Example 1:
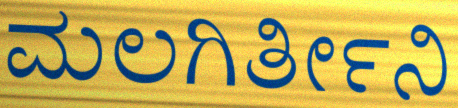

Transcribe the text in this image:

ಮಲಗಿರ್ತೀನಿ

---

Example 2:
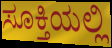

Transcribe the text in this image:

ಸೂಕ್ತಿಯಲ್ಲಿ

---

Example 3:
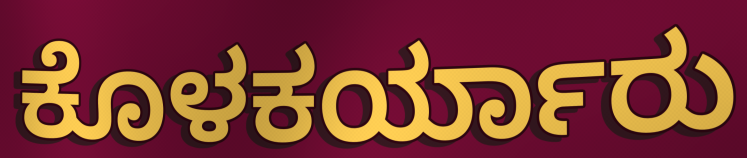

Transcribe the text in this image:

ಕೊಳಕರ್ಯಾರು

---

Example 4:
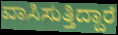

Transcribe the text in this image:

ವಾಸಿಸುತ್ತಿದ್ದಾರೆ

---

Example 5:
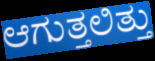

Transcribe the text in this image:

ಆಗುತ್ತಲಿತ್ತು